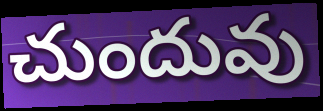
చుందువు